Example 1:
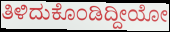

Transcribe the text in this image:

ತಿಳಿದುಕೊಂಡಿದ್ದೀಯೋ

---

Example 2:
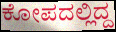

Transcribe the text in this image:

ಕೋಪದಲ್ಲಿದ್ದ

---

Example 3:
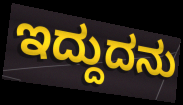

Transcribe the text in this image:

ಇದ್ದುದನು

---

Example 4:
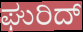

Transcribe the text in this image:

ಘುರಿದ್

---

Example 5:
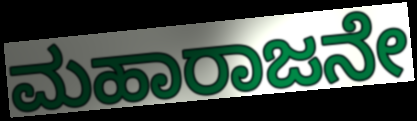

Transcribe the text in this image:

ಮಹಾರಾಜನೇ